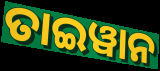
ତାଇୱାନ